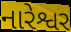
નારેશ્વર